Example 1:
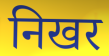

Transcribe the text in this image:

निखर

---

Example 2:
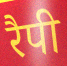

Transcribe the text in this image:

रैपी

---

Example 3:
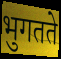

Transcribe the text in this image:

भुगतते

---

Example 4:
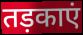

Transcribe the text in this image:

तड़काएं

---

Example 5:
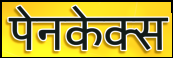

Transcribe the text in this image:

पेनकेक्स